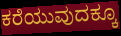
ಕರೆಯುವುದಕ್ಕೂ